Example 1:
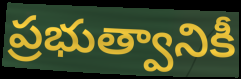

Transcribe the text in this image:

ప్రభుత్వానికీ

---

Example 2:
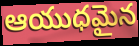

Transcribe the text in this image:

ఆయుధమైన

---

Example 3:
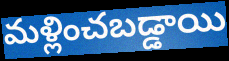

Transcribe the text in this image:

మళ్లించబడ్డాయి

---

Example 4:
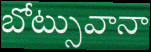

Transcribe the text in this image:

బోట్సువానా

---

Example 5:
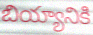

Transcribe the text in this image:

బియ్యానికి